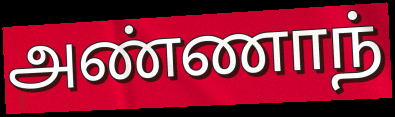
அண்ணாந்